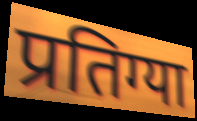
प्रतिग्या